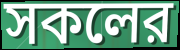
সকলের